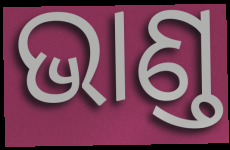
ଭାଣ୍ଡ